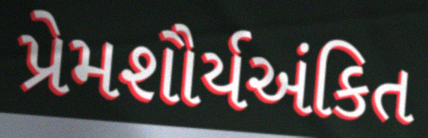
પ્રેમશૌર્યઅંકિત